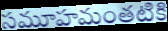
సమూహమంతటికి